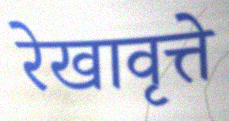
रेखावृत्ते